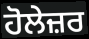
ਹੋਲੇਜ਼ਰ